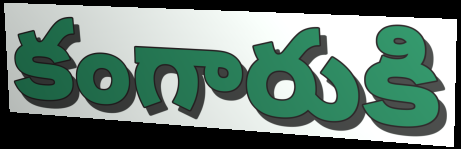
కంగారుకి